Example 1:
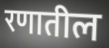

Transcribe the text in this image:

रणातील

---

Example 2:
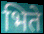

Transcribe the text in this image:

भिते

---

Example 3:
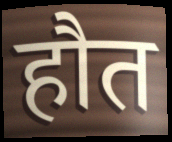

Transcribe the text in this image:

हौत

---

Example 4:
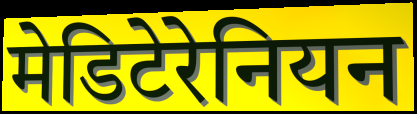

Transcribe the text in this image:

मेडिटेरेनियन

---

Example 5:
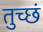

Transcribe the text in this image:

तुच्छं